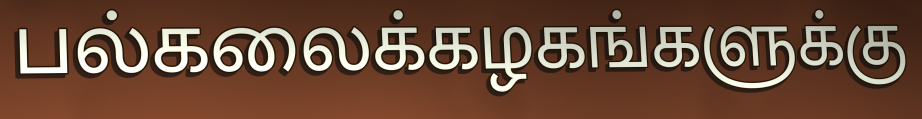
பல்கலைக்கழகங்களுக்கு